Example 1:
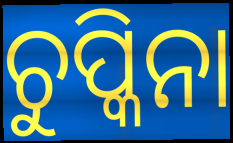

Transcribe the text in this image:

ଚୁପ୍କିନା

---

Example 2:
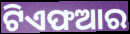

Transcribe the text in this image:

ଟିଏଫଆର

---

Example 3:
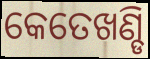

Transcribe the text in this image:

କେତେଖଣ୍ଡି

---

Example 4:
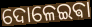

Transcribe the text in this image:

ଦୋଳେଇଵା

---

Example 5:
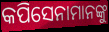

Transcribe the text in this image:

କପିସେନାମାନଙ୍କୁ